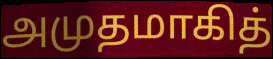
அமுதமாகித்